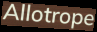
Allotrope